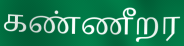
கண்ணீறர